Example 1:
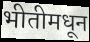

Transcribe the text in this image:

भीतीमधून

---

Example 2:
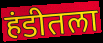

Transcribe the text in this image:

हंडीतला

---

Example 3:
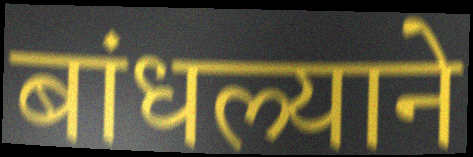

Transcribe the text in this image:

बांधल्याने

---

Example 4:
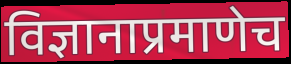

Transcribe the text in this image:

विज्ञानाप्रमाणेच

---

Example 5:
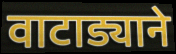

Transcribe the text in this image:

वाटाड्याने